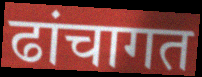
ढांचागत